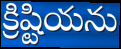
క్రిష్టియను